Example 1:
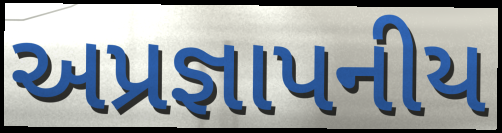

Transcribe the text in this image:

અપ્રજ્ઞાપનીય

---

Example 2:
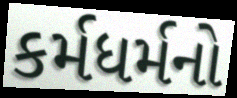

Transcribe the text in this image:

કર્મધર્મનો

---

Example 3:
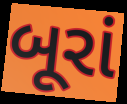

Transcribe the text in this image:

બૂરાં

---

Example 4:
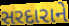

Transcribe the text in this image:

સરદારાને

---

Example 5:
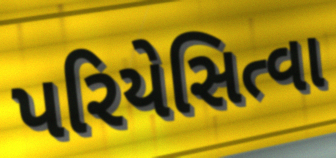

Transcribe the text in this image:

પરિયેસિત્વા